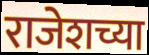
राजेशच्या